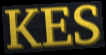
KES